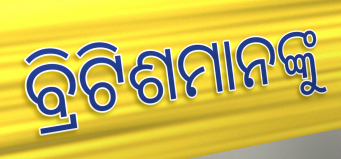
ବ୍ରିଟିଶମାନଙ୍କୁ